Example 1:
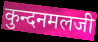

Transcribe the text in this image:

कुन्दनमलजी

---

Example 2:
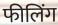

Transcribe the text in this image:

फीलिंग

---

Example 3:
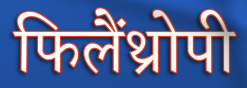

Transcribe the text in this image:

फिलैंथ्रोपी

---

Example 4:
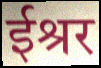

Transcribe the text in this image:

ईश्रर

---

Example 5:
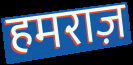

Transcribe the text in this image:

हमराज़